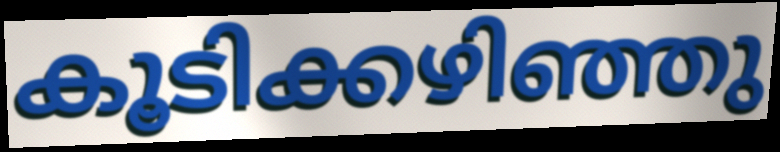
കൂടിക്കഴിഞ്ഞു